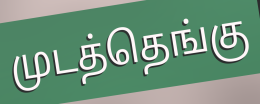
முடத்தெங்கு